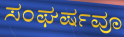
ಸಂಘರ್ಷವೂ